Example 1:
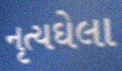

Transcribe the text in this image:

નૃત્યઘેલા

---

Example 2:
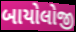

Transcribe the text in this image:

બાયોલોજી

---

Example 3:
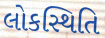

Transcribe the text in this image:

લોકસ્થિતિ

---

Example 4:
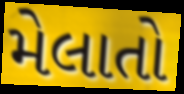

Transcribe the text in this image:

મેલાતો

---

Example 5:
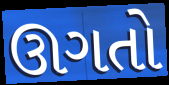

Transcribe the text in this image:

ઊગતો